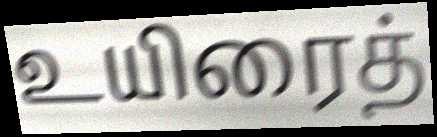
உயிரைத்